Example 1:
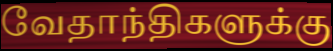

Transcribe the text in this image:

வேதாந்திகளுக்கு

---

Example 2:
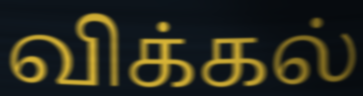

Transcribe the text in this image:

விக்கல்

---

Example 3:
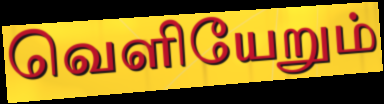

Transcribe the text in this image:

வெளியேறும்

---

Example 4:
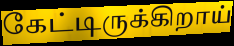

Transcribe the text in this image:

கேட்டிருக்கிறாய்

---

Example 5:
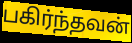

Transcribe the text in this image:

பகிர்ந்தவன்